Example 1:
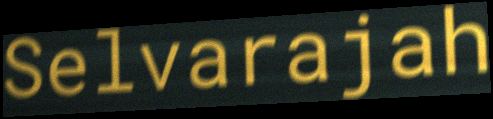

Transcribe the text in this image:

Selvarajah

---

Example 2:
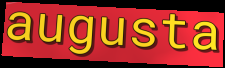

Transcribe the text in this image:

augusta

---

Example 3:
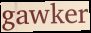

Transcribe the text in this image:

gawker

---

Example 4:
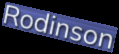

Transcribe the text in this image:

Rodinson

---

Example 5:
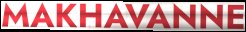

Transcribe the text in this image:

MAKHAVANNE